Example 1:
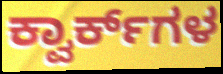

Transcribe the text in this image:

ಕ್ವಾರ್ಕ್‌ಗಳ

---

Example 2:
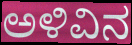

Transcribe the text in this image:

ಅಳಿವಿನ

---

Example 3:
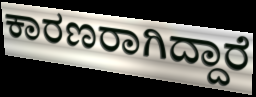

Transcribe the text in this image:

ಕಾರಣರಾಗಿದ್ದಾರೆ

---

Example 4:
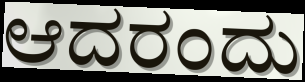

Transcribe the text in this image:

ಆದರಂದು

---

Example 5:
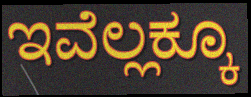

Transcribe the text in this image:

ಇವೆಲ್ಲಕ್ಕೂ